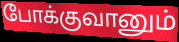
போக்குவானும்